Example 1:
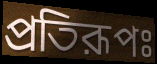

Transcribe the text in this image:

প্রতিরূপঃ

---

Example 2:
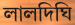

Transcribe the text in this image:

লালদিঘি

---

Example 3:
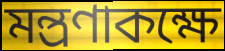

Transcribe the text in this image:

মন্ত্রণাকক্ষে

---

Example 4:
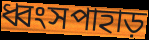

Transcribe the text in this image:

ধ্বংসপাহাড়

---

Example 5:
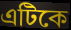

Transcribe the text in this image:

এটিকে